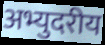
अभ्युदरीय